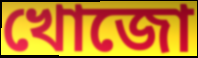
খোজো